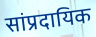
सांप्रदायिक